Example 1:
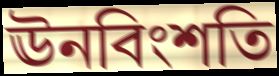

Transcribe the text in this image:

ঊনবিংশতি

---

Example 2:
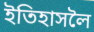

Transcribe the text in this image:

ইতিহাসলৈ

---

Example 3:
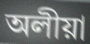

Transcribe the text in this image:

অলীয়া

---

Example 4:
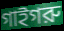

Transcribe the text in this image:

গাইগৰু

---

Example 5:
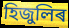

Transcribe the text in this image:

হিজুলিৰ